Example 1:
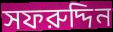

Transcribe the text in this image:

সফরুদ্দিন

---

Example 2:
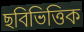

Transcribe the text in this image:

ছবিভিত্তিক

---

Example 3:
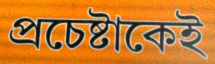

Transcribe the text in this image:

প্রচেষ্টাকেই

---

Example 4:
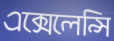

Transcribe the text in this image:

এক্সেলেন্সি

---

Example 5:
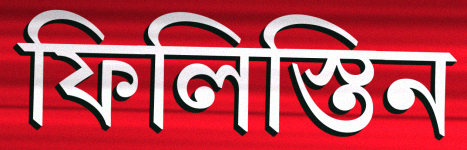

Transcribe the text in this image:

ফিলিস্তিন